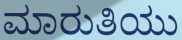
ಮಾರುತಿಯು